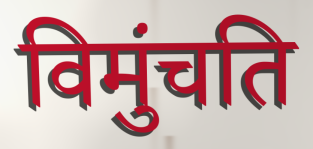
विमुंचति